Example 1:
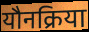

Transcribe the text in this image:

यौनक्रिया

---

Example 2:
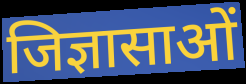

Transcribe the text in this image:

जिज्ञासाओं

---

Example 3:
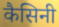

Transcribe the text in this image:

कैसिनी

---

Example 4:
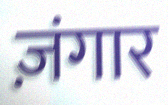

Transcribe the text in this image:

ज़ंगार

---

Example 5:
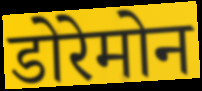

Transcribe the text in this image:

डोरेमोन